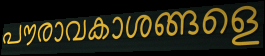
പൗരാവകാശങ്ങളെ